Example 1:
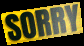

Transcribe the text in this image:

SORRY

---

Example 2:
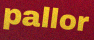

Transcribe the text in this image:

pallor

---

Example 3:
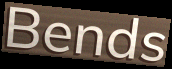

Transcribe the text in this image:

Bends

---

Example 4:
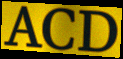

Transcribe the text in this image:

ACD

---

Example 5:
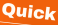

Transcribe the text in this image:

Quick